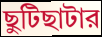
ছুটিছাটার